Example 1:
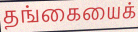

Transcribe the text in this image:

தங்கையைக்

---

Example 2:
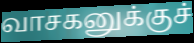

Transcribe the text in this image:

வாசகனுக்குச்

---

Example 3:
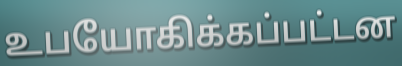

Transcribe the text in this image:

உபயோகிக்கப்பட்டன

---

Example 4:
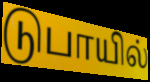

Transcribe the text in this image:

டுபாயில்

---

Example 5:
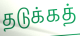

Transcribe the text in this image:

தடுக்கத்